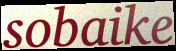
sobaike